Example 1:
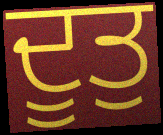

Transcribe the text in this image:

ਦੂਤੁ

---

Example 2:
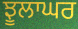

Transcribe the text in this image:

ਝੂਲਾਘਰ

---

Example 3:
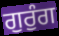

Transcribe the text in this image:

ਗੁਰੁੰਗ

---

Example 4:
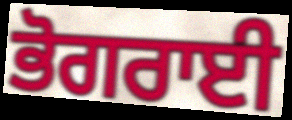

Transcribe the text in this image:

ਭੋਗਰਾਈ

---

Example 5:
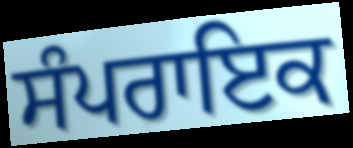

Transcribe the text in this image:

ਸੰਪਰਾਇਕ